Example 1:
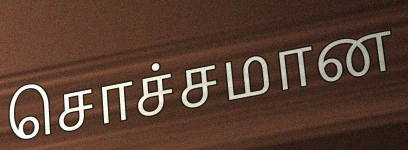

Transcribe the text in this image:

சொச்சமான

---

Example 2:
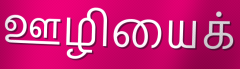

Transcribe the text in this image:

ஊழியைக்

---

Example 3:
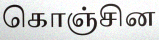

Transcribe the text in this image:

கொஞ்சின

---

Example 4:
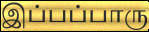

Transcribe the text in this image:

இப்பப்பாரு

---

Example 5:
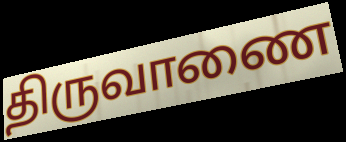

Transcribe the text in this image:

திருவாணை